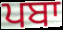
ਪਬਾ